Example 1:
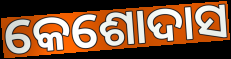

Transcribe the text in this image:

କେଶୋଦାସ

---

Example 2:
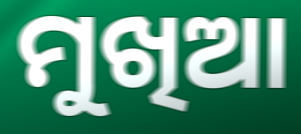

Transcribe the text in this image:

ମୁଖିଆ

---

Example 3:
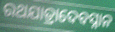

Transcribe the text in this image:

ରଥଯାତ୍ରାଦେବସ୍ନାନ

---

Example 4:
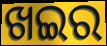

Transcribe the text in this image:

ଖଇର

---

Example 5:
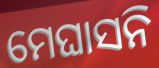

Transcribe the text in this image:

ମେଘାସନି